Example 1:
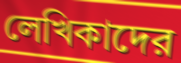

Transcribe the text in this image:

লেখিকাদের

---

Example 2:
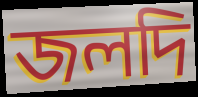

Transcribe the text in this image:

জলদি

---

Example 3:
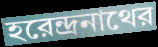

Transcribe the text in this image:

হরেন্দ্রনাথের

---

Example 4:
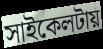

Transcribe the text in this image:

সাইকেলটায়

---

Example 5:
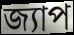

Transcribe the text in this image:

জ্যাপ